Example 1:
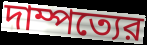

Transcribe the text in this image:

দাম্পত্যের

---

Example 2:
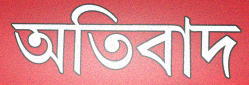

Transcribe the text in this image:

অতিবাদ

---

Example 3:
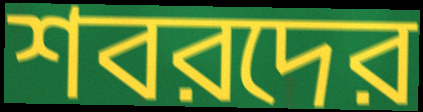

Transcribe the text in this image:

শবরদের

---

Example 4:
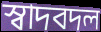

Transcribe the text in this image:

স্বাদবদল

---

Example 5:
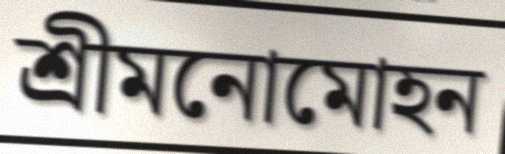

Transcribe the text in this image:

শ্রীমনোমোহন